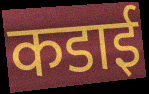
कडाई